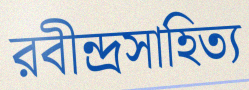
রবীন্দ্রসাহিত্য